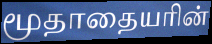
மூதாதையரின்